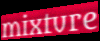
mixture